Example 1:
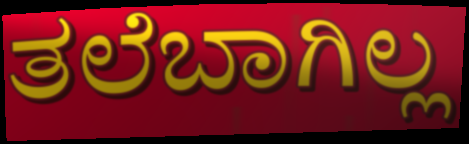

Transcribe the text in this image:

ತಲೆಬಾಗಿಲ್ಲ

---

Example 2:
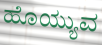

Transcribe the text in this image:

ಹೊಯ್ಯುವ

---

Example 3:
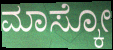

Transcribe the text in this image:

ಮಾಸ್ಕೋ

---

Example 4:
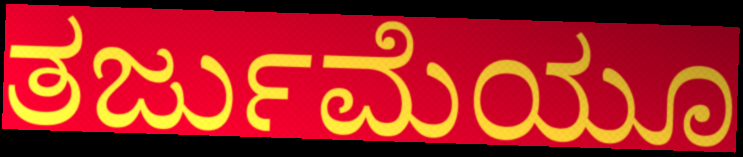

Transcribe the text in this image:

ತರ್ಜುಮೆಯೂ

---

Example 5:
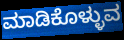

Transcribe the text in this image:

ಮಾಡಿಕೊಳ್ಳುವ